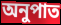
অনুপাত